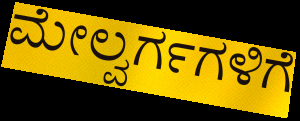
ಮೇಲ್ವರ್ಗಗಳಿಗೆ